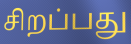
சிறப்பது